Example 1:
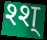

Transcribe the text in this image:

श्श्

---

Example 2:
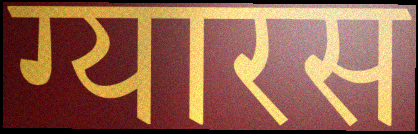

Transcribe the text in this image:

ग्यारस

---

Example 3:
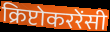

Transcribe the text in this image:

क्रिप्टोकररेंसी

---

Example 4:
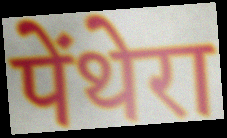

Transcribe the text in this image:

पेंथेरा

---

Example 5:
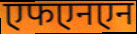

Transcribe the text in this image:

एफएनएन